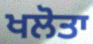
ਖਲੋਤਾ